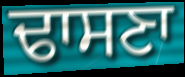
ਢਾਸਣਾ